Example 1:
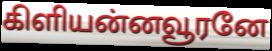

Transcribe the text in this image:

கிளியன்னவூரனே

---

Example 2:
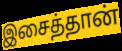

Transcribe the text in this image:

இசைத்தான்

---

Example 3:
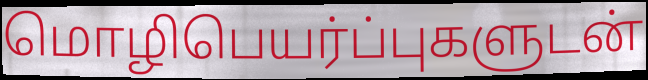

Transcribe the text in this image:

மொழிபெயர்ப்புகளுடன்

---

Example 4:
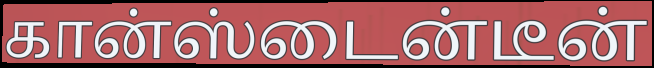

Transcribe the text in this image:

கான்ஸ்டைன்டீன்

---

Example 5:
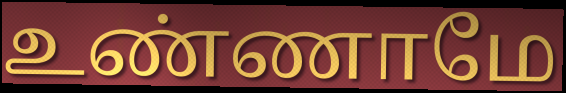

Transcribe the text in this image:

உண்ணாமே